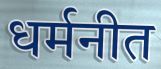
धर्मनीत